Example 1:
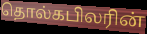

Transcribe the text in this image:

தொல்கபிலரின்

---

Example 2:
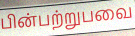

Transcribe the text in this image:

பின்பற்றுபவை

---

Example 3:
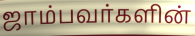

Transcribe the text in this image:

ஜாம்பவர்களின்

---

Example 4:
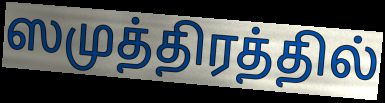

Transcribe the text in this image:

ஸமுத்திரத்தில்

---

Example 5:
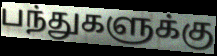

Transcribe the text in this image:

பந்துகளுக்கு